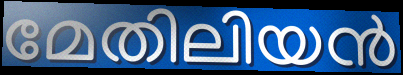
മേതിലിയൻ